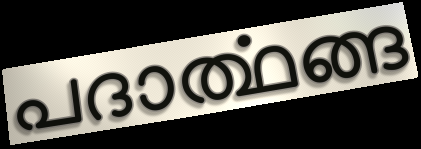
പദാൎത്ഥങ്ങ